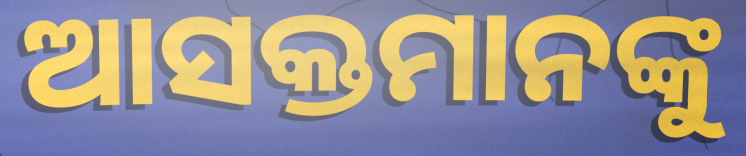
ଆସକ୍ତମାନଙ୍କୁ